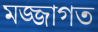
মজ্জাগত